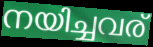
നയിച്ചവര്